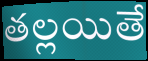
తల్లయితే